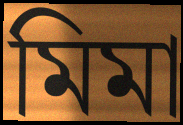
মিমা